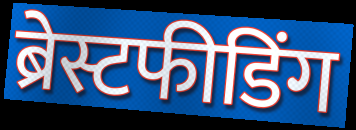
ब्रेस्टफीडिंग